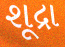
શૂદ્રા